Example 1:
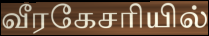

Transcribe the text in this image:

வீரகேசரியில்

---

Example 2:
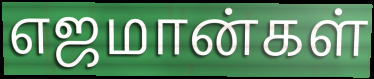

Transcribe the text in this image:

எஜமான்கள்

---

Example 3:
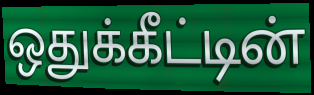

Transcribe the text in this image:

ஒதுக்கீட்டின்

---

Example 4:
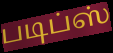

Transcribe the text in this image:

படிப்ஸ்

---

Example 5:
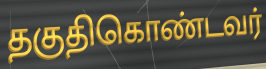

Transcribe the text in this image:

தகுதிகொண்டவர்